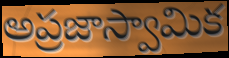
అప్రజాస్వామిక